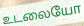
உடலையோ